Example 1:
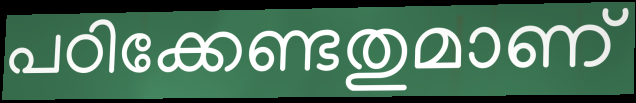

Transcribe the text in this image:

പഠിക്കേണ്ടതുമാണ്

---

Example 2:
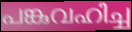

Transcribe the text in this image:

പങ്കുവഹിച്ച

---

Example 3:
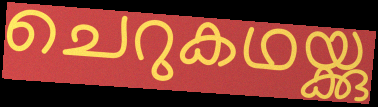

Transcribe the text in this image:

ചെറുകഥയ്ക്കു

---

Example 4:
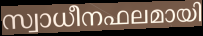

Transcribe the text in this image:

സ്വാധീനഫലമായി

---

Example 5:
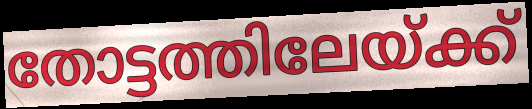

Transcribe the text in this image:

തോട്ടത്തിലേയ്ക്ക്